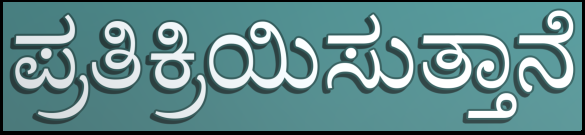
ಪ್ರತಿಕ್ರಿಯಿಸುತ್ತಾನೆ